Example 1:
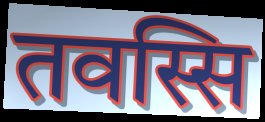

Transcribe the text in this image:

तवस्सि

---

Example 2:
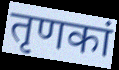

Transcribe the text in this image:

तृणकां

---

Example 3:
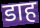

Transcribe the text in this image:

डाह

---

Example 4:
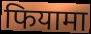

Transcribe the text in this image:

फियामा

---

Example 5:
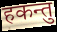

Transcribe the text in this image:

हकन्तु